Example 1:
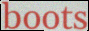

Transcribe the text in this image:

boots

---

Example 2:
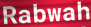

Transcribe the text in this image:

Rabwah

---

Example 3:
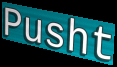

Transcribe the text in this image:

Pusht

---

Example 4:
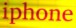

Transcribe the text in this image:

iphone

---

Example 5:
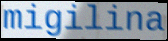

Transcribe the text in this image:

migilina